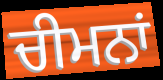
ਚੀਮਨਾਂ